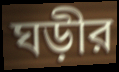
ঘড়ীর